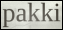
pakki